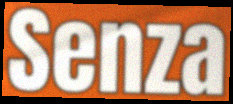
Senza